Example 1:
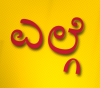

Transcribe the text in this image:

ಎಲ್ಗೆ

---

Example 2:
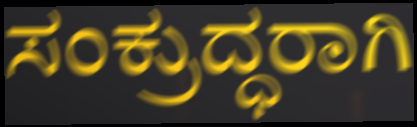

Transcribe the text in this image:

ಸಂಕ್ರುದ್ಧರಾಗಿ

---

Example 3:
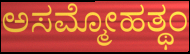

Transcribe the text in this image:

ಅಸಮ್ಮೋಹತ್ಥಂ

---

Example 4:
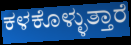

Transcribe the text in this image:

ಕಳಕೊಳ್ಳುತ್ತಾರೆ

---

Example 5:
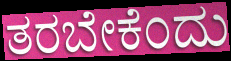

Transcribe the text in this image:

ತರಬೇಕೆಂದು